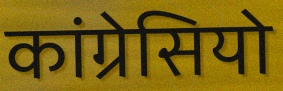
कांग्रेसियो